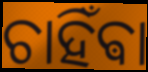
ଚାହିଁଵା